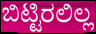
ಬಿಟ್ಟಿರಲಿಲ್ಲ